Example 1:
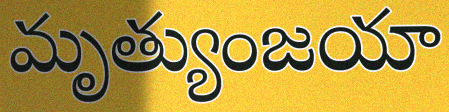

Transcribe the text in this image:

మృత్యుంజయా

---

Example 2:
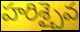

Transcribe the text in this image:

హరిశ్చైవ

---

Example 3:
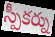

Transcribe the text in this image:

స్పీకర్ను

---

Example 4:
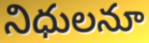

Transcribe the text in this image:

నిధులనూ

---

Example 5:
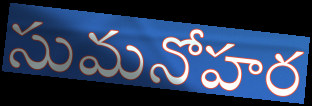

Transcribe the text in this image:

సుమనోహర